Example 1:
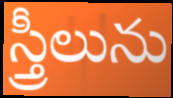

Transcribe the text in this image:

స్త్రీలును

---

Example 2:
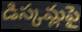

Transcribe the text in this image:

డిస్కమ్లపై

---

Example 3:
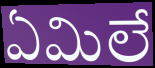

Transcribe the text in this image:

ఏమిలే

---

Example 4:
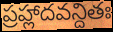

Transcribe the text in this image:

ప్రహ్లాదవన్దితః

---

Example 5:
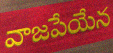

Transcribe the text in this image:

వాజపేయేన